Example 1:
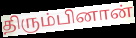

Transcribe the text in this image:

திரும்பினான்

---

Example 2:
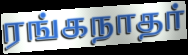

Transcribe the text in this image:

ரங்கநாதர்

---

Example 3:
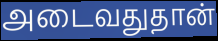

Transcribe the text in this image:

அடைவதுதான்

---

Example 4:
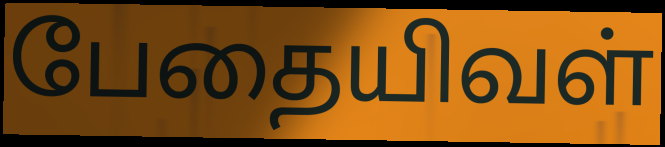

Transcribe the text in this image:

பேதையிவள்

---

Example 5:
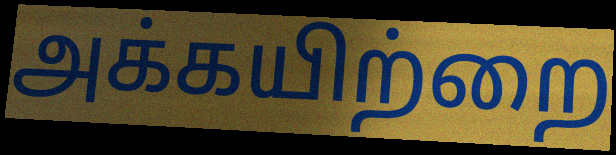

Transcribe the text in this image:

அக்கயிற்றை